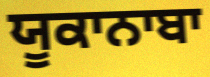
ਯੂਕਾਨਾਬਾ